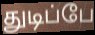
துடிப்பே